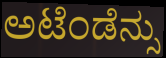
ಅಟೆಂಡೆನ್ಸು